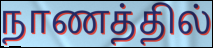
நாணத்தில்